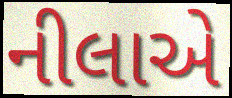
નીલાએ